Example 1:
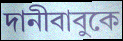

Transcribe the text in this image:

দানীবাবুকে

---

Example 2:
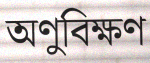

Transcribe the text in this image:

অণুবিক্ষণ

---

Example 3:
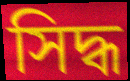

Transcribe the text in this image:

সিদ্ধ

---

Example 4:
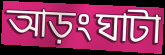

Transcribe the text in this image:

আড়ংঘাটা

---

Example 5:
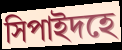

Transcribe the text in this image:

সিপাইদহে